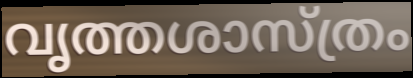
വൃത്തശാസ്ത്രം